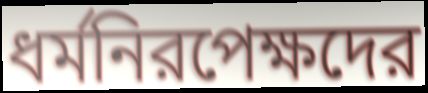
ধর্মনিরপেক্ষদের